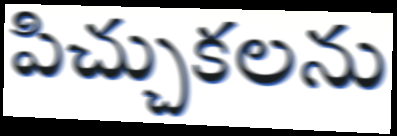
పిచ్చుకలను